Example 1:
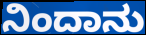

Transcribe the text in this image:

ನಿಂದಾನು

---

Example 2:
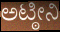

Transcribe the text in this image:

ಅಟ್ಠೀನಿ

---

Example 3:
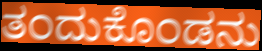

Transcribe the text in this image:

ತಂದುಕೊಂಡನು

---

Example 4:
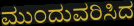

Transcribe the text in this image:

ಮುಂದುವರಿಸಿದ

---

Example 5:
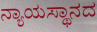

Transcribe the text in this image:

ನ್ಯಾಯಸ್ಥಾನದ